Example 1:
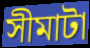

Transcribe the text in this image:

সীমাটা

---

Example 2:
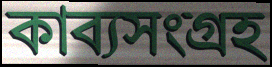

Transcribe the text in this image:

কাব্যসংগ্রহ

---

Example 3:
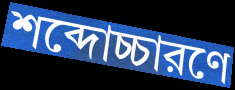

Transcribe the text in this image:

শব্দোচ্চারণে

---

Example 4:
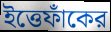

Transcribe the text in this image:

ইত্তেফাঁকের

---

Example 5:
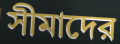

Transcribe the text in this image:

সীমাদের